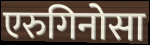
एरुगिनोसा